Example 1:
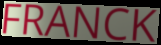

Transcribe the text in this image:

FRANCK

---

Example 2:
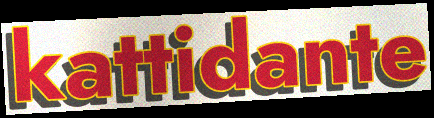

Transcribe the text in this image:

kattidante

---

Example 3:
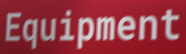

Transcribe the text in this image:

Equipment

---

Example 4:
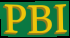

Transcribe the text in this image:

PBI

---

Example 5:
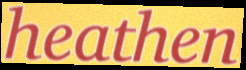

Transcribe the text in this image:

heathen